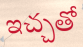
ఇచ్చతో